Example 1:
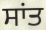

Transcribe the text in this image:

ਸਾਂਤ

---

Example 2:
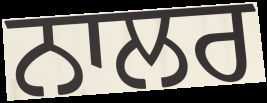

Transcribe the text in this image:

ਨਾਲਰ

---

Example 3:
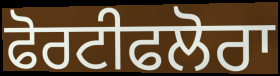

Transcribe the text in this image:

ਫੋਰਟੀਫਲੋਰਾ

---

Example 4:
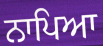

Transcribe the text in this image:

ਨਾਪਿਆ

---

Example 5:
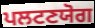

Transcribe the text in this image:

ਪਲਟਣਯੋਗ